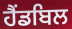
ਹੈਂਡਬਿਲ